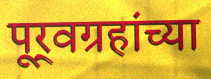
पूर्वग्रहांच्या